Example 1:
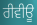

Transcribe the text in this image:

ਰੀਵੀਊ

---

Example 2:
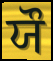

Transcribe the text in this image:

ਯੌ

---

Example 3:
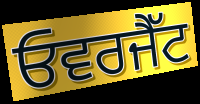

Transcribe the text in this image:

ਓਵਰਜੈੱਟ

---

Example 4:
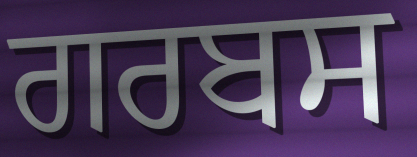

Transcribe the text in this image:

ਗਰਬਸ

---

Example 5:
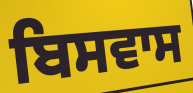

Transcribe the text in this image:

ਬਿਸਵਾਸ